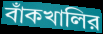
বাঁকখালির